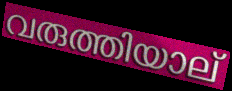
വരുത്തിയാല്